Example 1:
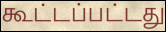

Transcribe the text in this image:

கூட்டப்பட்டது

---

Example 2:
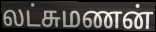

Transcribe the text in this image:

லட்சுமணன்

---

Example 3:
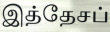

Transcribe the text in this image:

இத்தேசப்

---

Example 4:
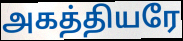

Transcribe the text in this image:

அகத்தியரே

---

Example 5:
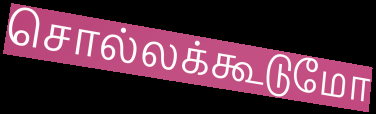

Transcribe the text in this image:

சொல்லக்கூடுமோ